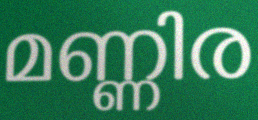
മണ്ണിര